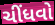
ચીંધવો